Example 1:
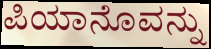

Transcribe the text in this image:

ಪಿಯಾನೊವನ್ನು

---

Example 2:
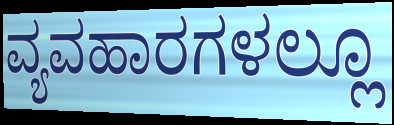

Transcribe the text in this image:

ವ್ಯವಹಾರಗಳಲ್ಲೂ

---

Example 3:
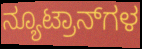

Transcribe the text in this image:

ನ್ಯೂಟ್ರಾನ್‌ಗಳ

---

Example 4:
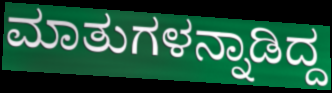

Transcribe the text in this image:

ಮಾತುಗಳನ್ನಾಡಿದ್ದ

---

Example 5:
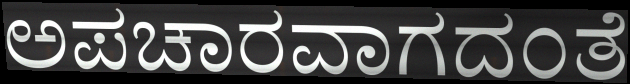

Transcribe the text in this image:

ಅಪಚಾರವಾಗದಂತೆ